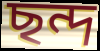
ছন্দ